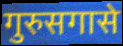
गुरुसगासे